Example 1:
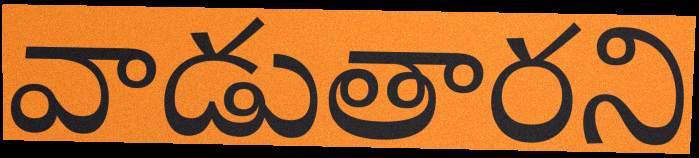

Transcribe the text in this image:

వాడుతారని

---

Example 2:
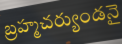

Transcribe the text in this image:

బ్రహ్మచర్యుండనై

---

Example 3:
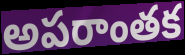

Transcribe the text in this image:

అపరాంతక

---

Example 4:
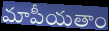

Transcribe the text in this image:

మాపీయతాం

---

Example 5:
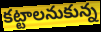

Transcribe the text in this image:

కట్టాలనుకున్న